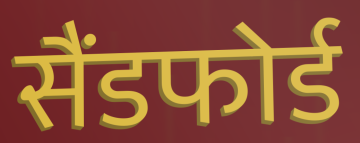
सैंडफोर्ड